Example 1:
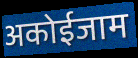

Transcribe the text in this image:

अकोईजाम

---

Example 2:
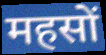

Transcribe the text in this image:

महसों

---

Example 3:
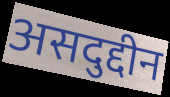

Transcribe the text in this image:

असदुद्दीन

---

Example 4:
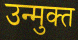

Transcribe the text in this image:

उन्मुक्त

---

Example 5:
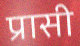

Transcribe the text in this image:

प्रासी